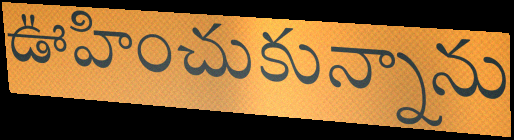
ఊహించుకున్నాను